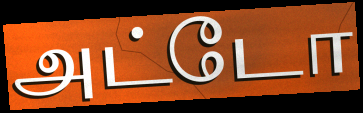
அட்டோ